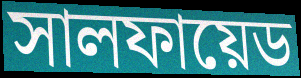
সালফায়েড